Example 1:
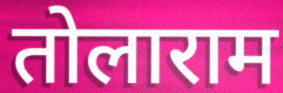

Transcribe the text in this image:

तोलाराम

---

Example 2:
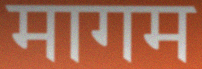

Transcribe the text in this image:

मागम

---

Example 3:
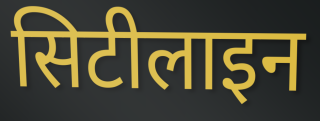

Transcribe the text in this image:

सिटीलाइन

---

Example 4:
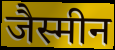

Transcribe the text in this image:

जैस्‍मीन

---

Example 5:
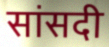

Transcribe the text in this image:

सांसदी